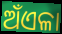
ଅଁଏଳା